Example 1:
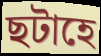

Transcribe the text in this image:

ছটাহে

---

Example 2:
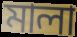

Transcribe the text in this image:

মালা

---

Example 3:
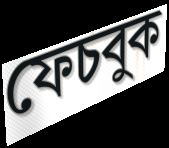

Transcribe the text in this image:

ফেচবুক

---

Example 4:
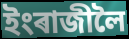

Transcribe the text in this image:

ইংৰাজীলৈ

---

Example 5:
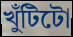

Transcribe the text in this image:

খুঁটিটো